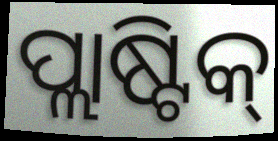
ପ୍ଲାଷ୍ଟିକ୍